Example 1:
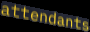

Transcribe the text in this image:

attendants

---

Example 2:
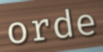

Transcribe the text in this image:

orde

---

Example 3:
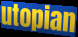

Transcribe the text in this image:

utopian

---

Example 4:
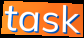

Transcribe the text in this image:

task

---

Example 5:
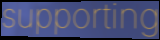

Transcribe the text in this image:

supporting